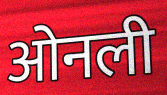
ओनली